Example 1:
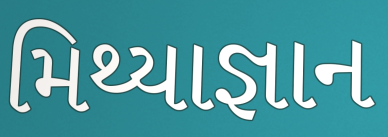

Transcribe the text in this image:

મિથ્યાજ્ઞાન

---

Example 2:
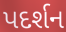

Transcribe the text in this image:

પદર્શન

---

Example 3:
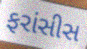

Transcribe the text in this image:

ફરાંસીસ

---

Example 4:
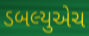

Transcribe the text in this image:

ડબલ્યુએચ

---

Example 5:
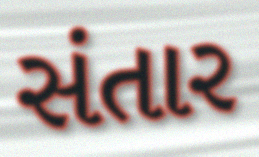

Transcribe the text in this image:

સંતાર